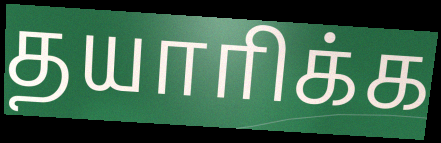
தயாரிக்க